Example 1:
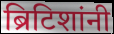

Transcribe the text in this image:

ब्रिटिशांनी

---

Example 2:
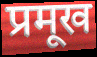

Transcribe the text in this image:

प्रमूख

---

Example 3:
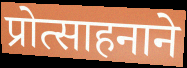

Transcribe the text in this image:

प्रोत्साहनाने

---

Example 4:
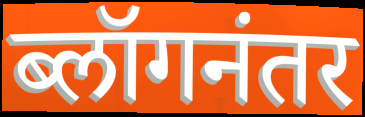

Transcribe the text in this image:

ब्लॉगनंतर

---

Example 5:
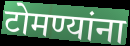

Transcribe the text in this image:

टोमण्यांना